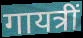
गायत्रीं